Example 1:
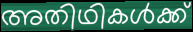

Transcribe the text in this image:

അതിഥികൾക്ക്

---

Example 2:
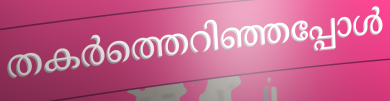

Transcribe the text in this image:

തകർത്തെറിഞ്ഞപ്പോൾ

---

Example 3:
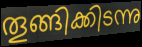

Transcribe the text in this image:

തൂങ്ങിക്കിടന്നു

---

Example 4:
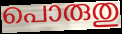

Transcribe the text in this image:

പൊരുതു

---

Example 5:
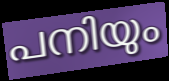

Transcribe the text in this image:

പനിയും